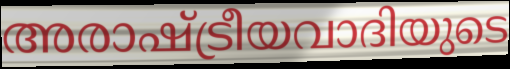
അരാഷ്ട്രീയവാദിയുടെ